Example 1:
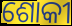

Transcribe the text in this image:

ଶୋକୀ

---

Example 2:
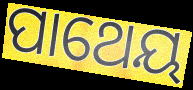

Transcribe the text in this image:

ପାଥେୟ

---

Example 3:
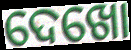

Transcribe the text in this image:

ଦେଖୋ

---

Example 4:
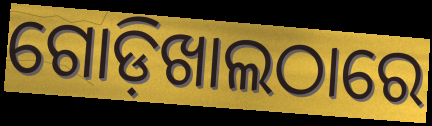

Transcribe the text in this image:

ଗୋଡ଼ିଖାଲଠାରେ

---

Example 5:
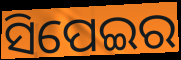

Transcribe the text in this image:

ସିପେଇର